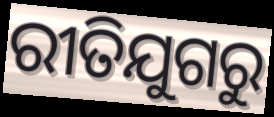
ରୀତିଯୁଗରୁ